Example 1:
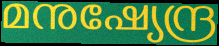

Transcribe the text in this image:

മനുഷ്യേന്ദ്ര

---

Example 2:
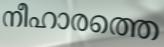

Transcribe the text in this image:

നീഹാരത്തെ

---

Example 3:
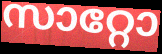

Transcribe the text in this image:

സാറ്റോ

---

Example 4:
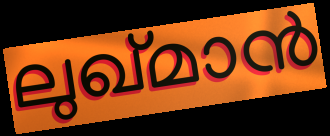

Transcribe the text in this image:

ലുഖ്മാൻ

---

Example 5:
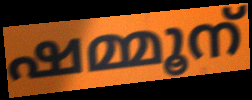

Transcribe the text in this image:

ഷമ്മൂന്